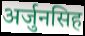
अर्जुनसिह